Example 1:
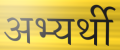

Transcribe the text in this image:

अभ्यर्थी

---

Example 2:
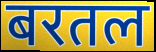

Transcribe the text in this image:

बरतल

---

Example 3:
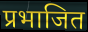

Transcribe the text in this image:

प्रभाजित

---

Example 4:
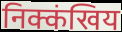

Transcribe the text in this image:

निक्कंखिय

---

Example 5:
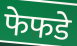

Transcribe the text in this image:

फेफडे